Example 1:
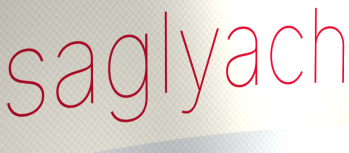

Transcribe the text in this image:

saglyach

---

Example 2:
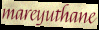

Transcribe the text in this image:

mareyuthane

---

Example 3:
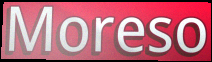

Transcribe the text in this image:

Moreso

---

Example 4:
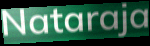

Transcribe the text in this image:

Nataraja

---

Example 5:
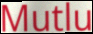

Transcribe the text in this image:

Mutlu